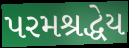
પરમશ્રદ્ધેય